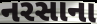
નરસાના